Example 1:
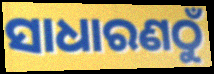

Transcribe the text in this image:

ସାଧାରଣଠୁଁ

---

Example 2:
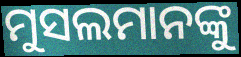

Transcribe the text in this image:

ମୁସଲମାନଙ୍କୁ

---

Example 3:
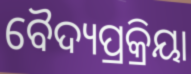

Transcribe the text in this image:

ବୈଦ୍ୟପ୍ରକ୍ରିୟା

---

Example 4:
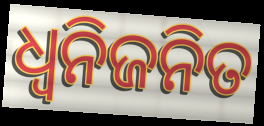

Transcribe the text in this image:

ଧ୍ଵନିଜନିତ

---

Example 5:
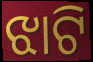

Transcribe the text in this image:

ଝାଟି